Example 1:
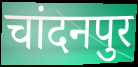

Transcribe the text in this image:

चांदनपुर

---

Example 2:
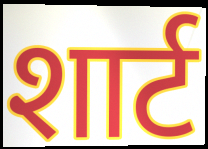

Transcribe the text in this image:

शार्ट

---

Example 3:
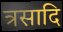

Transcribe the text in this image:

त्रसादि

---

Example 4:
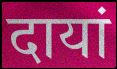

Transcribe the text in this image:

दायां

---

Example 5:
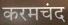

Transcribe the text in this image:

करमचंद